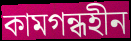
কামগন্ধহীন